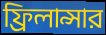
ফ্রিলান্সার